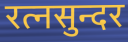
रत्नसुन्दर